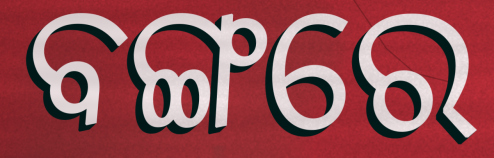
ବଙ୍ଗରେ